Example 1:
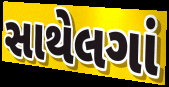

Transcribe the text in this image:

સાથેલગાં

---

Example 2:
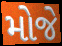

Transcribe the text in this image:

મોજે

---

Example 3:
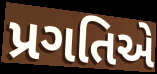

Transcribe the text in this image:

પ્રગતિએ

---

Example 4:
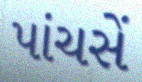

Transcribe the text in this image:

પાંચસેં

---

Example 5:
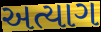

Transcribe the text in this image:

અત્યાગ